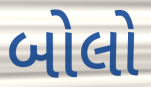
બોલો